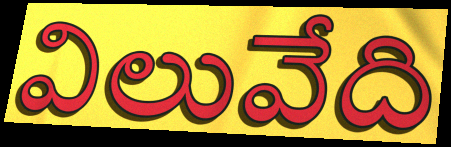
విలువేది